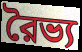
রৈভ্য